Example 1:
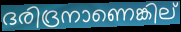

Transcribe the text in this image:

ദരിദ്രനാണെങ്കില്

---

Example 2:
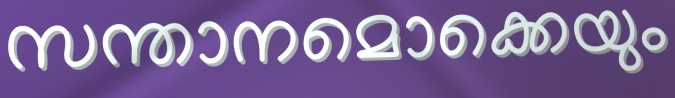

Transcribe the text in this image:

സന്താനമൊക്കെയും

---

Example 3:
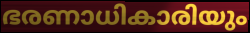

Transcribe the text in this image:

ഭരണാധികാരിയും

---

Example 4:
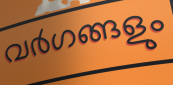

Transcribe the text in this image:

വർഗങ്ങളും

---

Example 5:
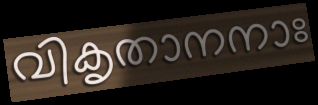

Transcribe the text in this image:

വികൃതാനനാഃ